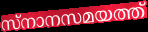
സ്നാനസമയത്ത്